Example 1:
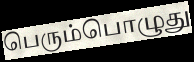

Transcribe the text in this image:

பெரும்பொழுது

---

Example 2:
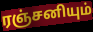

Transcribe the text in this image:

ரஞ்சனியும்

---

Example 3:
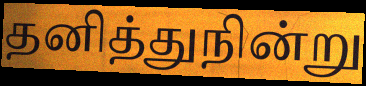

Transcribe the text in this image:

தனித்துநின்று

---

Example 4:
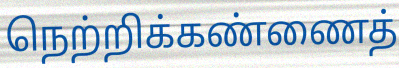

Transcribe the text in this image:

நெற்றிக்கண்ணைத்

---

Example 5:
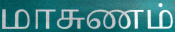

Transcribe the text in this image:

மாசுணம்